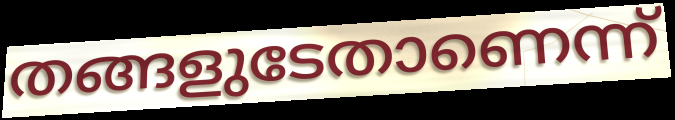
തങ്ങളുടേതാണെന്ന്